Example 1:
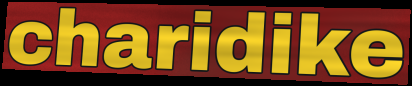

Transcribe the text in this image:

charidike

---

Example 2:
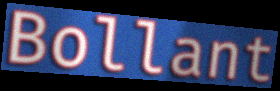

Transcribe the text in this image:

Bollant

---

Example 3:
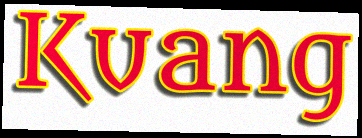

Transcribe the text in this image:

Kuang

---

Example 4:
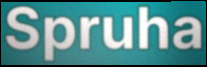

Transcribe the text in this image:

Spruha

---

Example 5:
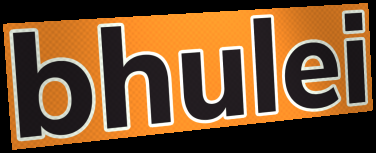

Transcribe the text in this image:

bhulei